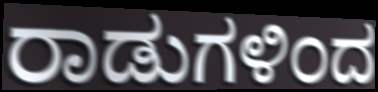
ರಾಡುಗಳಿಂದ